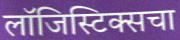
लॉजिस्टिक्सचा